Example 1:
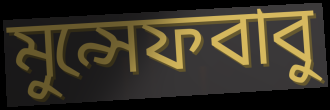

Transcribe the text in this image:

মুন্সেফবাবু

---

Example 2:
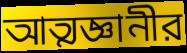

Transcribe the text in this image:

আত্মজ্ঞানীর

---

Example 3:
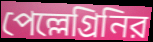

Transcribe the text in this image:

পেল্লেগ্রিনির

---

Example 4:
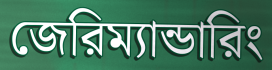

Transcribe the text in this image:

জেরিম্যান্ডারিং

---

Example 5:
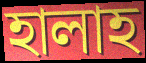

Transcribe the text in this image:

হালাহ